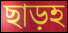
ছাড়হ